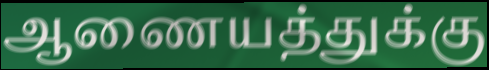
ஆணையத்துக்கு